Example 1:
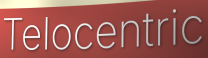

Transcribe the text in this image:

Telocentric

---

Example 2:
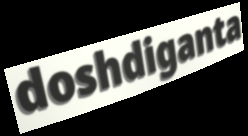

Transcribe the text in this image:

doshdiganta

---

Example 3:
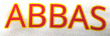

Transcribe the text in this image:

ABBAS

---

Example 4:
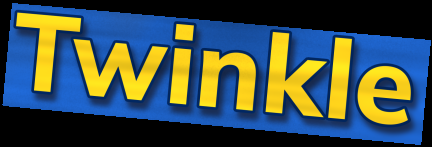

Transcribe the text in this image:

Twinkle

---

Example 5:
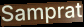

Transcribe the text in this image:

Samprat